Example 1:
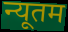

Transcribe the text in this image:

न्यूतम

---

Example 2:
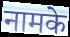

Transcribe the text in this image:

नामके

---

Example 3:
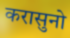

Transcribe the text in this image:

करासुनो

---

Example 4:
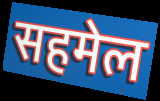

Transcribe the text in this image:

सहमेल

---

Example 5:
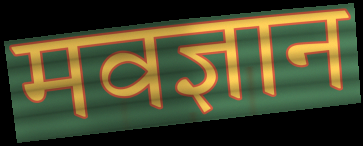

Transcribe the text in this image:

मवज्ञान